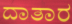
ದಾತಾರ